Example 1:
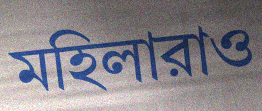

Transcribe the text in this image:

মহিলারাও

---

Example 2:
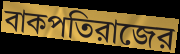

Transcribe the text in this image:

বাকপতিরাজের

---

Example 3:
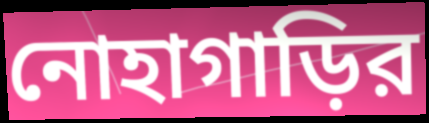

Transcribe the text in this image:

নোহাগাড়ির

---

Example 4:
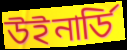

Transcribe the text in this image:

উইনার্ডি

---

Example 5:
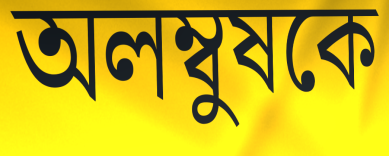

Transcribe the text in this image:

অলম্বুষকে